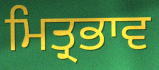
ਮਿਤ੍ਰਭਾਵ